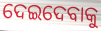
ଦେଇଦେବାକୁ